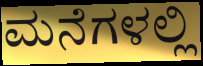
ಮನೆಗಳಲ್ಲಿ